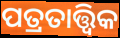
ପତ୍ରତାତ୍ତ୍ୱିକ